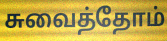
சுவைத்தோம்